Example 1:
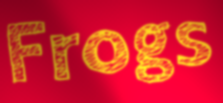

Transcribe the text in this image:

Frogs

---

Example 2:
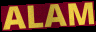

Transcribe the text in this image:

ALAM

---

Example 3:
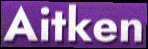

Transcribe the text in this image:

Aitken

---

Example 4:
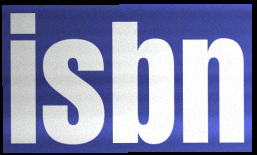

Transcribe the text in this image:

isbn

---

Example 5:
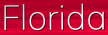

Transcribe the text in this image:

Florida